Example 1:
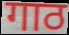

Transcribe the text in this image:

गाठ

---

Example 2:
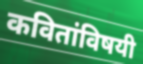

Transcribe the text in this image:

कवितांविषयी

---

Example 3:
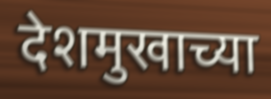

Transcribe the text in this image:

देशमुखाच्या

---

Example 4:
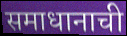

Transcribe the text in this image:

समाधानाची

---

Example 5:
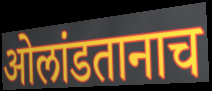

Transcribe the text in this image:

ओलांडतानाच